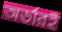
অর্ডারই